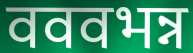
वववभन्न